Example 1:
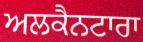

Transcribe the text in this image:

ਅਲਕੈਨਟਾਰਾ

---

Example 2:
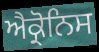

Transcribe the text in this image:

ਐਕ੍ਰੋਨਿਸ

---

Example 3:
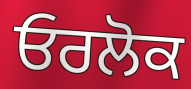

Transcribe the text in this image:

ਓਰਲੋਕ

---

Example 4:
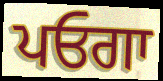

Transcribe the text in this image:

ਪਓਗਾ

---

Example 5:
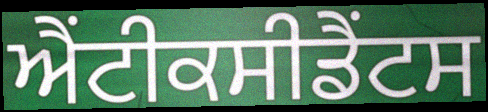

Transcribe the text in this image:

ਐਂਟੀਕਸੀਡੈਂਟਸ